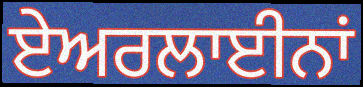
ਏਅਰਲਾਈਨਾਂ